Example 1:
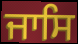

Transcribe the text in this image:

ਜਾਸਿ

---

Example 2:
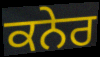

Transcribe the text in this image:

ਕਨੇਰ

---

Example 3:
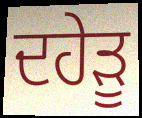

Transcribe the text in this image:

ਦਹੇੜੂ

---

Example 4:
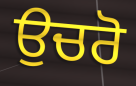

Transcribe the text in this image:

ਉਚਰੋ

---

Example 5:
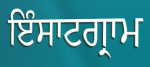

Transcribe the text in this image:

ਇੰਸਾਟਗ੍ਰਾਮ